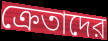
ক্রেতাদের